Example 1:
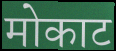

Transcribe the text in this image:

मोकाट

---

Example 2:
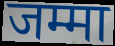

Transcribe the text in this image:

जम्मा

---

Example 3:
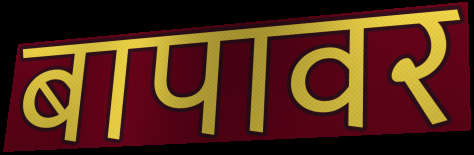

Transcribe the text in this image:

बापावर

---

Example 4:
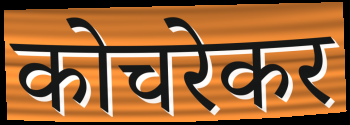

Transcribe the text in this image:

कोचरेकर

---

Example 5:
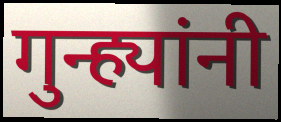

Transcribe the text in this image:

गुन्ह्यांनी